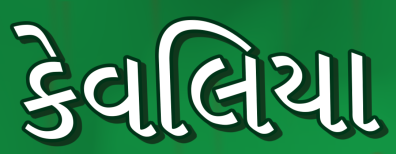
કેવલિયા